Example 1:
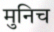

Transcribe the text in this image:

मुनिच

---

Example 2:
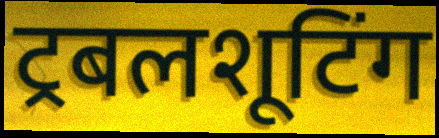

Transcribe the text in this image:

ट्रबलशूटिंग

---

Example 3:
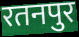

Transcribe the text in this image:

रतनपुर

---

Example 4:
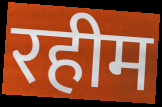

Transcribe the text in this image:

रहीम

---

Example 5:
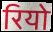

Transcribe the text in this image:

रियो